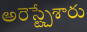
అరెస్ట్చేశారు